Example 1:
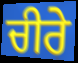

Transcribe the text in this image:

ਚੀਰੇ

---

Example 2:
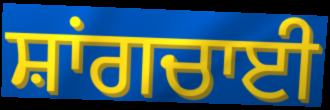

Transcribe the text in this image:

ਸ਼ਾਂਗਚਾਈ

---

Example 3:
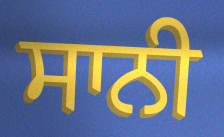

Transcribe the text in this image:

ਸਾਨੀ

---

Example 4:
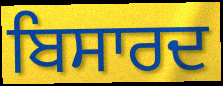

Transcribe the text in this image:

ਬਿਸਾਰਦ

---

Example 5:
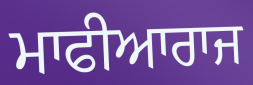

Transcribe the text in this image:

ਮਾਫੀਆਰਾਜ